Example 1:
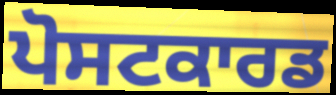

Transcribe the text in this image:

ਪੋਸਟਕਾਰਡ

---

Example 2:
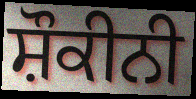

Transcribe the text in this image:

ਸ਼ੌਕੀਨੀ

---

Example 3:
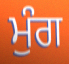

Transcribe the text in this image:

ਮੁੰਗ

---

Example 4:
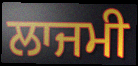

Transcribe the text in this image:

ਲਾਜਮੀ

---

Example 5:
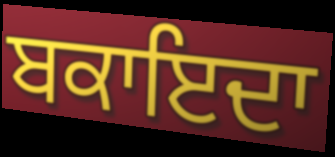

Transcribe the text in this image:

ਬਕਾਇਦਾ